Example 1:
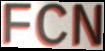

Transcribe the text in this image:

FCN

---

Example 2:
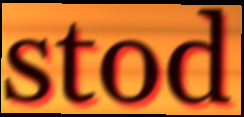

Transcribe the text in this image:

stod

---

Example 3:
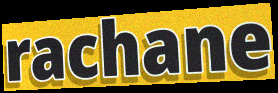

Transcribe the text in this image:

rachane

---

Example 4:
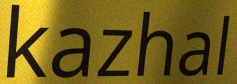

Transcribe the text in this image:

kazhal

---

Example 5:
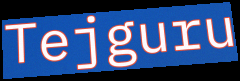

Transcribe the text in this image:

Tejguru